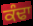
ਕੰਢਾ